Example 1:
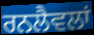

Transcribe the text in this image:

ਰਨਲੈਵਲਾਂ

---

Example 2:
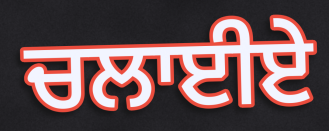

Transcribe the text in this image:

ਚਲਾਈਏ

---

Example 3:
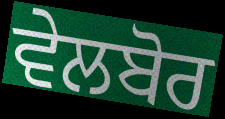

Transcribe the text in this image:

ਵੇਲਬੋਰ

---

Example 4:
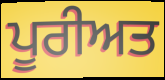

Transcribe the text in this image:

ਪੂਰੀਅਤ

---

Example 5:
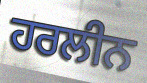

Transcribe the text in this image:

ਹਰਲੀਨ